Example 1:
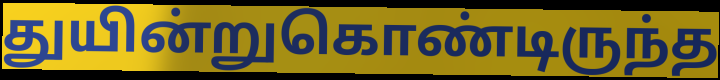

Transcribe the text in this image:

துயின்றுகொண்டிருந்த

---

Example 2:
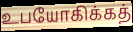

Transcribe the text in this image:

உபயோகிக்கத்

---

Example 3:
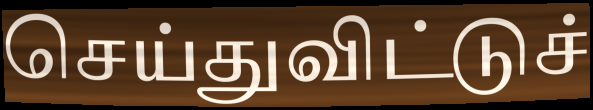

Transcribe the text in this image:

செய்துவிட்டுச்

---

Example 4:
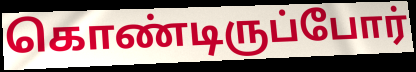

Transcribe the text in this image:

கொண்டிருப்போர்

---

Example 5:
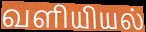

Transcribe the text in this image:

வளியியல்